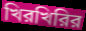
খিরখিরির